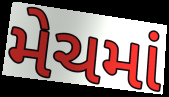
મેચમાં